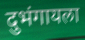
दुभंगायला